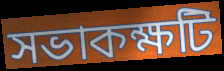
সভাকক্ষটি